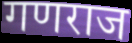
गणराज